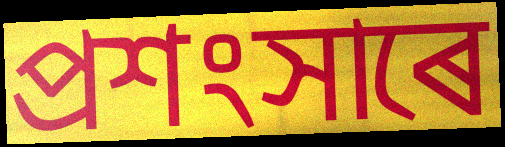
প্ৰশংসাৰে